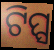
ଟିପ୍ସ